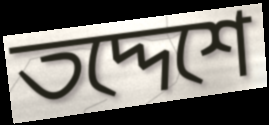
তদ্দেশে